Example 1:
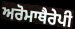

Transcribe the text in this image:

ਅਰੋਮਾਥੈਰੇਪੀ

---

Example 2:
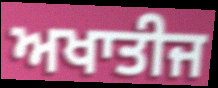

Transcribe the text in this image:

ਅਖਾਤੀਜ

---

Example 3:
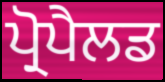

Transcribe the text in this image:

ਪ੍ਰੋਪੈਲਡ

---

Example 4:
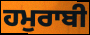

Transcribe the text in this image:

ਹਮੁਰਾਬੀ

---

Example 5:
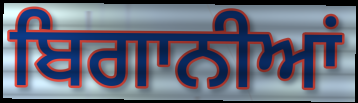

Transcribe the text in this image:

ਬਿਗਾਨੀਆਂ